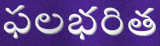
ఫలభరిత